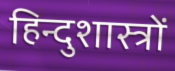
हिन्दुशास्त्रों